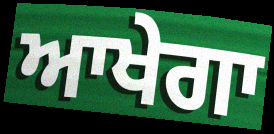
ਆਖੇਗਾ